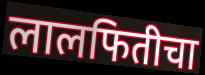
लालफितीचा